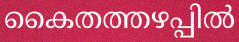
കൈതത്തഴപ്പിൽ